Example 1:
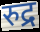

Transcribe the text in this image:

रुद्र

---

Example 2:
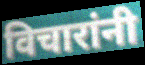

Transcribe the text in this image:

विचारांनी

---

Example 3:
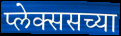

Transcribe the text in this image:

प्लेक्ससच्या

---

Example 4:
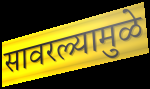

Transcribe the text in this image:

सावरल्यामुळे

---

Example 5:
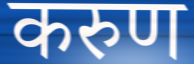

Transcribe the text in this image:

करुण